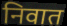
निवात